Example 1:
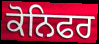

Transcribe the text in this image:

ਕੋਨਿਫਰ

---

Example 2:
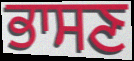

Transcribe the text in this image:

ਭਾਸਣ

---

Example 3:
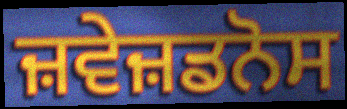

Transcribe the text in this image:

ਜ਼ਵੇਜ਼ਡਨੋਸ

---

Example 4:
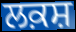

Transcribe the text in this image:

ਲਕ਼ਸ਼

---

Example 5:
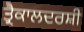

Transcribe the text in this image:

ਤ੍ਰੈਕਾਲਦਰਸ਼ੀ